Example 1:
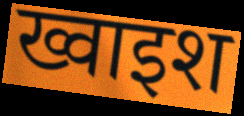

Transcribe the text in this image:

ख्वाइश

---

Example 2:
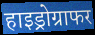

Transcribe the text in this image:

हाइड्रोग्राफर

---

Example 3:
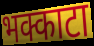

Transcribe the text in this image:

भक्काटा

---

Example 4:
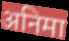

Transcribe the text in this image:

अनिमा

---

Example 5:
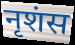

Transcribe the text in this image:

नृशंस